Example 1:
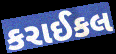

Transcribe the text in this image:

કરાઈકલ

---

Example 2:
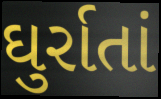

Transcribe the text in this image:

ઘુર્રાતાં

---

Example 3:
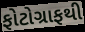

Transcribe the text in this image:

ફોટોગ્રાફથી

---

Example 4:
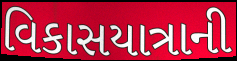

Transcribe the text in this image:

વિકાસયાત્રાની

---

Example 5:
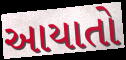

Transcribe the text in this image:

આયાતો